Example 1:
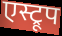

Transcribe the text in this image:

एस्ट्रूप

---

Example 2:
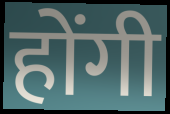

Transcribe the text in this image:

होंगी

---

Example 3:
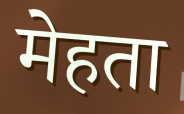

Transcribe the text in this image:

मेहता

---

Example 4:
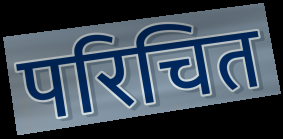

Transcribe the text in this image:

परिचित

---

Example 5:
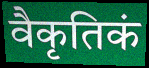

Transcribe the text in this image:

वैकृतिकं